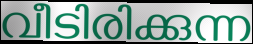
വീടിരിക്കുന്ന